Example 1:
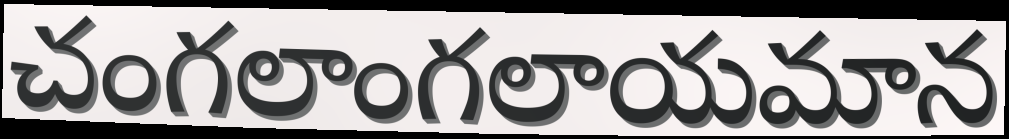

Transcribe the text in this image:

చంగలాంగలాయమాన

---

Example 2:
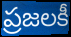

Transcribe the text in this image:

ప్రజలకీ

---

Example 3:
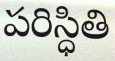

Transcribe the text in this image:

పరిస్ధితి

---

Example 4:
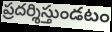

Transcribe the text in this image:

ప్రదర్శిస్తుండటం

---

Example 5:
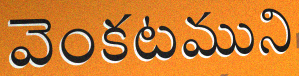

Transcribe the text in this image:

వెంకటముని